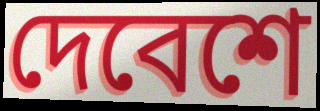
দেবেশে